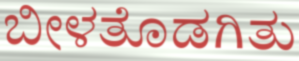
ಬೀಳತೊಡಗಿತು